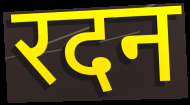
रदन